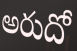
అరుదో